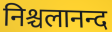
निश्चलानन्द